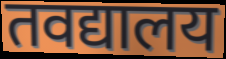
तवद्यालय